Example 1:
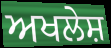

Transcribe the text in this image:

ਅਖਲੇਸ਼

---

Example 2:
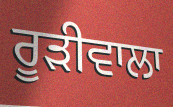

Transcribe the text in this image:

ਰੂਡ਼ੀਵਾਲਾ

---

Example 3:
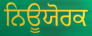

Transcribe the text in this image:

ਨਿਊਯੋਰਕ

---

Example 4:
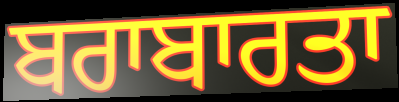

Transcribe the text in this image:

ਬਰਾਬਾਰਤਾ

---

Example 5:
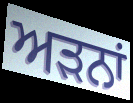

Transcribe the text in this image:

ਅੜਨਾਂ